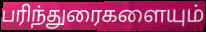
பரிந்துரைகளையும்